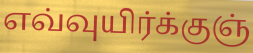
எவ்வுயிர்க்குஞ்